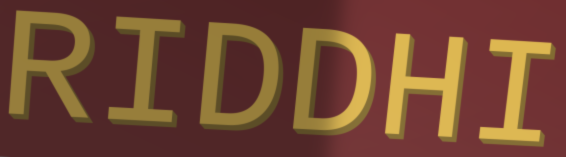
RIDDHI